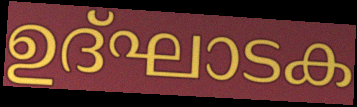
ഉദ്ഘാടക